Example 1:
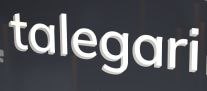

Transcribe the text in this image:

talegari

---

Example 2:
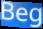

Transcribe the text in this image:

Beg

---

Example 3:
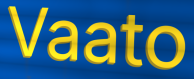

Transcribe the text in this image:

Vaato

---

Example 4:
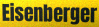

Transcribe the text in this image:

Eisenberger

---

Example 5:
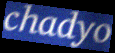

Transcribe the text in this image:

chadyo